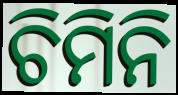
ଚିମିନି